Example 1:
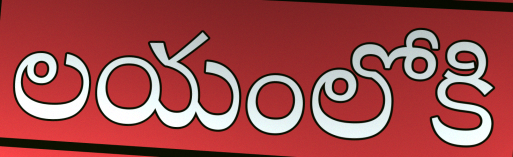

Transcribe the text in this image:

లయంలోకి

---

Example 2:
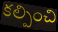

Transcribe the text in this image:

కల్పించి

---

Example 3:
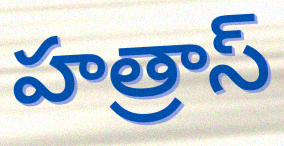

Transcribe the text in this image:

హత్రాస్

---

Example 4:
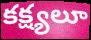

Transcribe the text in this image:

కక్ష్యలూ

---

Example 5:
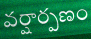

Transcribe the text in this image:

వర్షార్పణం